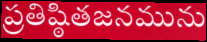
ప్రతిష్ఠితజనమును